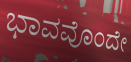
ಭಾವವೊಂದೇ